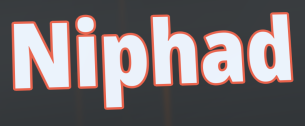
Niphad